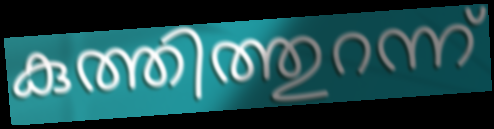
കുത്തിത്തുറന്ന്